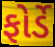
ફોર્ડે